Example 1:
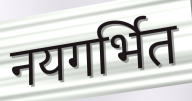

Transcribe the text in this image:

नयगर्भित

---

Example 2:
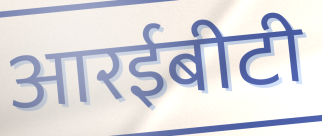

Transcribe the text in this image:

आरईबीटी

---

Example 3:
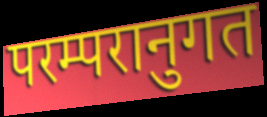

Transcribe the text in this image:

परम्परानुगत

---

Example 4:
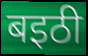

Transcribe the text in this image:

बइठी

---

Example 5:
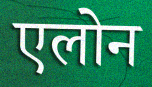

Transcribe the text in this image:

एलोन